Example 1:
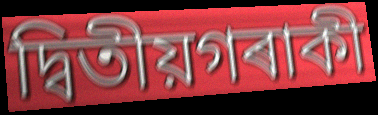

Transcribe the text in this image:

দ্বিতীয়গৰাকী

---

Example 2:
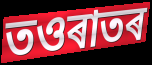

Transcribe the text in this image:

তওৰাতৰ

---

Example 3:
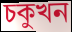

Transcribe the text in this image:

চকুখন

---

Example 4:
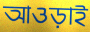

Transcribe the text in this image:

আওড়াই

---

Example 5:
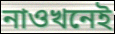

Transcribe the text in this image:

নাওখনেই